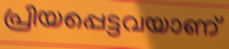
പ്രിയപ്പെട്ടവയാണ്